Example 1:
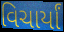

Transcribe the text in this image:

વિચાર્યાં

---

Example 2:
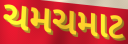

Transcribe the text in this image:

ચમચમાટ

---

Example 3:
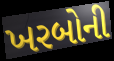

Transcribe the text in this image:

ખરબોની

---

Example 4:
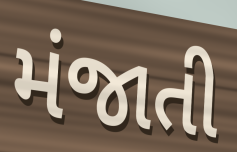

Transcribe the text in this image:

મંજાતી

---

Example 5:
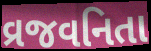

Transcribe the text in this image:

વ્રજવનિતા